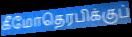
கீமோதெரபிக்குப்